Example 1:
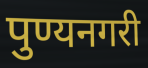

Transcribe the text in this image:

पुण्यनगरी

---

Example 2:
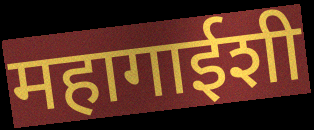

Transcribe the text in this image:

महागाईशी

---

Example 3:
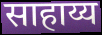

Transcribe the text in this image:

साहाय्य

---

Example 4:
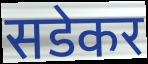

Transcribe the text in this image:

सडेकर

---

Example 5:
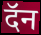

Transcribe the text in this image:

दॅन